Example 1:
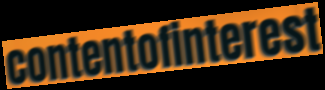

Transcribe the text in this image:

contentofinterest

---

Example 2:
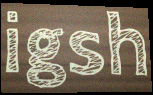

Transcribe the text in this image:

igsh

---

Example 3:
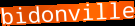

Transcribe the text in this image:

bidonville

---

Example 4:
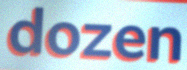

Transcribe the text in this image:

dozen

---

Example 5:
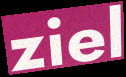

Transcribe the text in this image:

ziel